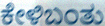
ಕೇಳಿಬಂತು